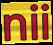
nii